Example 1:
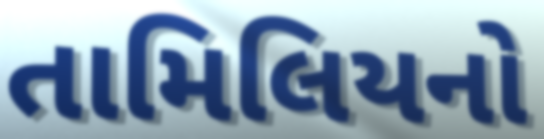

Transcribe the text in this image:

તામિલિયનો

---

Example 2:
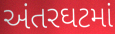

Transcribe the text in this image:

અંતરઘટમાં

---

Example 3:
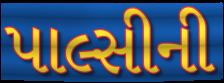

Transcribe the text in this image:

પાલ્સીની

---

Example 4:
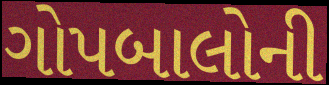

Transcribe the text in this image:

ગોપબાલોની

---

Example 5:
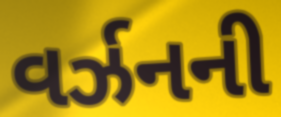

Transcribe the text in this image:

વર્ઝનની